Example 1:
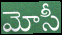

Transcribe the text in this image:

మోసీ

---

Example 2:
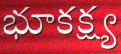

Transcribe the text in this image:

భూకక్ష్య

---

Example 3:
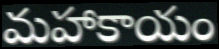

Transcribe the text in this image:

మహాకాయం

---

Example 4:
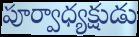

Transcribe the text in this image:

పూర్వాధ్యక్షుడు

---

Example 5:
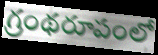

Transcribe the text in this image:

గ్రంథరూపంలో